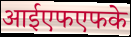
आईएफएफके